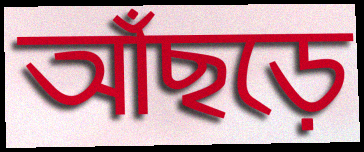
আঁছড়ে